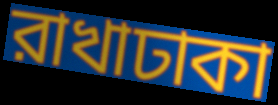
রাখাঢাকা